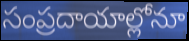
సంప్రదాయాల్లోనూ